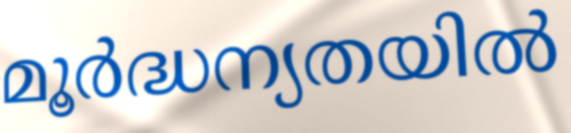
മൂർദ്ധന്യതയിൽ